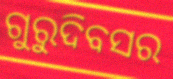
ଗୁରୁଦିବସର